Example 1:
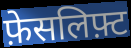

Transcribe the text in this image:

फ़ेसलिफ़्ट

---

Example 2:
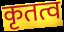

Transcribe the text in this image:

कृतत्व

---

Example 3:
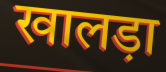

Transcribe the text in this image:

खालड़ा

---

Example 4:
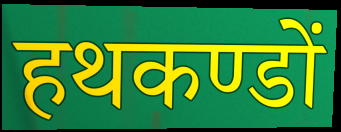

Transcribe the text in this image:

हथकण्डों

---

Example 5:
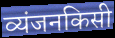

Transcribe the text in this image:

व्यंजनकिसी